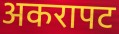
अकरापट